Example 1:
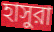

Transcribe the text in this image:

হাসুরা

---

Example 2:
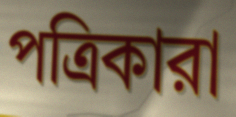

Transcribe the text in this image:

পত্রিকারা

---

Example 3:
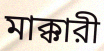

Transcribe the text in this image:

মাক্কারী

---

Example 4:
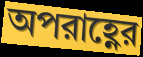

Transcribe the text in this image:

অপরাহ্ণের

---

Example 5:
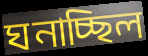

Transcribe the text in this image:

ঘনাচ্ছিল